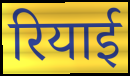
रियाई